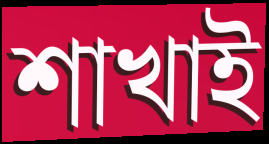
শাখাই